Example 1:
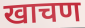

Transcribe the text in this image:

खाचण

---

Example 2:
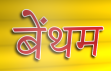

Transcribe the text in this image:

बेंथम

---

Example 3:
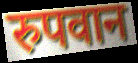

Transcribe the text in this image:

रुपवान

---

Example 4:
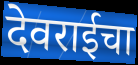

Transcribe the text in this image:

देवराईचा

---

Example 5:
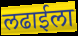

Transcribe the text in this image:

लढाईला